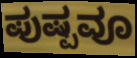
ಪುಷ್ಪವೂ